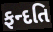
ફન્દતિ